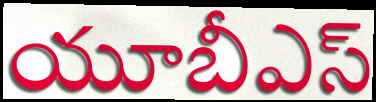
యూబీఎస్